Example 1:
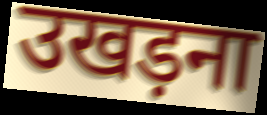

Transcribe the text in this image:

उखड़ना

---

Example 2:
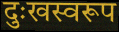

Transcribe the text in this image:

दुःखस्वरूप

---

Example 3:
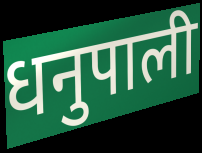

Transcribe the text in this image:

धनुपाली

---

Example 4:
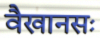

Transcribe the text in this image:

वैखानसः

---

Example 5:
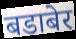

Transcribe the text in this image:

बडाबेर